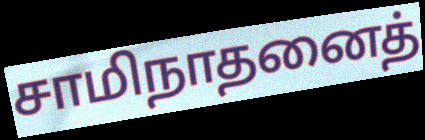
சாமிநாதனைத்